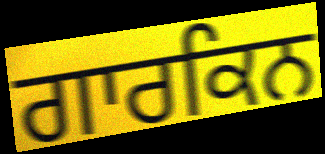
ਗਾਰਕਿਨ